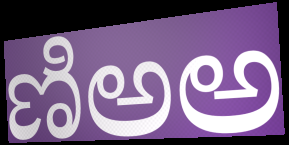
ణిఅఅ